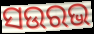
ସଉରଭ